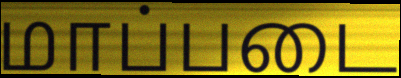
மாப்படை